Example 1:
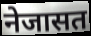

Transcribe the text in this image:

नेजासत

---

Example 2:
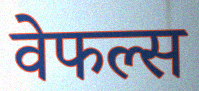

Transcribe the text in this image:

वेफल्स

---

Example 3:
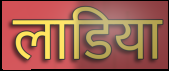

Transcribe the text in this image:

लाडिया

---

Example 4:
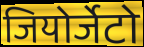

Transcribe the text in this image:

जियोर्जेटो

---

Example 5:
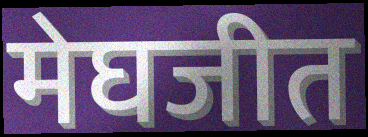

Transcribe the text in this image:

मेघजीत